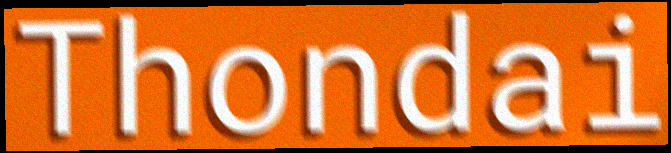
Thondai